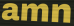
amn